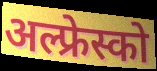
अल्फ्रेस्को